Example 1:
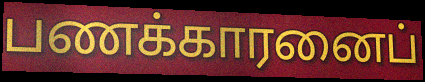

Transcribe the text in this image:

பணக்காரனைப்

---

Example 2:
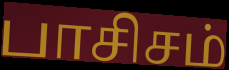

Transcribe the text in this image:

பாசிசம்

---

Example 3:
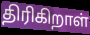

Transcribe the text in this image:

திரிகிறாள்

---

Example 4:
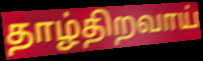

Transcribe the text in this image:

தாழ்திறவாய்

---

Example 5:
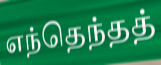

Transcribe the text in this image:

எந்தெந்தத்